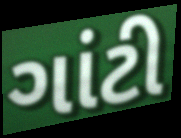
ગાંટી